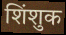
शिंशुक